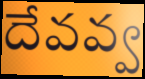
దేవవ్వ